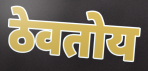
ठेवतोय